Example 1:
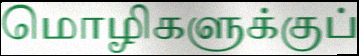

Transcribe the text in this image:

மொழிகளுக்குப்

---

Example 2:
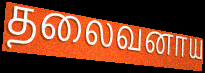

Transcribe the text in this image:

தலைவனாய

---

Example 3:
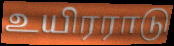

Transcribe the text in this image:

உயிரராடு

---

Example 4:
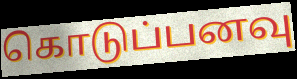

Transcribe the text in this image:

கொடுப்பனவு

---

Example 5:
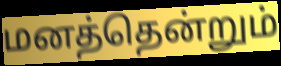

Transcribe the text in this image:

மனத்தென்றும்